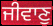
ਜੀਵਾਣੁ